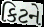
કિટને